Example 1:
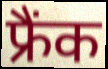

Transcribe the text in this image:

फ्रैंक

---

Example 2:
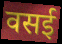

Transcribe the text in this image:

वसई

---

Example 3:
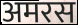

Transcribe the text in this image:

अमरस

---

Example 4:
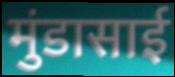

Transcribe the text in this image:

मुंडासाई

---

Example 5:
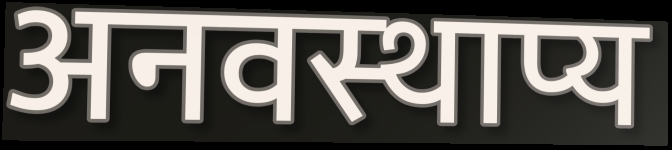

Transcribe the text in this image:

अनवस्थाप्य